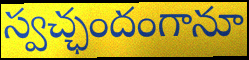
స్వచ్ఛందంగానూ